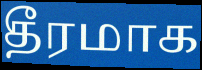
தீரமாக